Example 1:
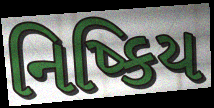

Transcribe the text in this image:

નિષ્કિય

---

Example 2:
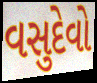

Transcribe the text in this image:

વસુદેવો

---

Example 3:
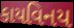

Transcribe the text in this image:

કાયવિનય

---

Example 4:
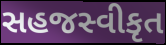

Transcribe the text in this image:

સહજસ્વીકૃત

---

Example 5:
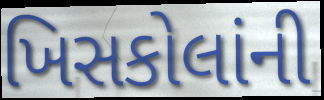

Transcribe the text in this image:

ખિસકોલાંની